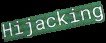
Hijacking